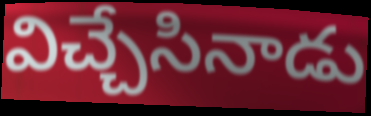
విచ్చేసినాడు